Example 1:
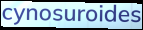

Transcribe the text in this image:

cynosuroides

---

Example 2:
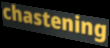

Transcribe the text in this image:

chastening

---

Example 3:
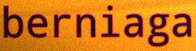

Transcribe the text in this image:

berniaga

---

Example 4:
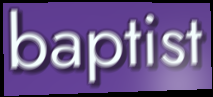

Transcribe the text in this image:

baptist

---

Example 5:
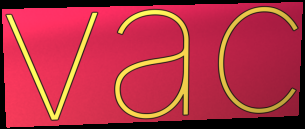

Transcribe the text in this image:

vac